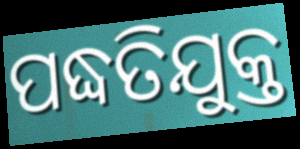
ପଦ୍ଧତିଯୁକ୍ତ